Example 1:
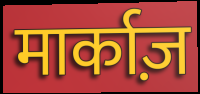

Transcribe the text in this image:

मार्काज़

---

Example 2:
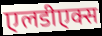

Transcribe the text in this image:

एलडीएक्स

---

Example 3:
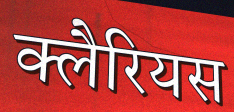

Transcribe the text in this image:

क्लैरियस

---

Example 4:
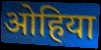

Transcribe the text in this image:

ओहिया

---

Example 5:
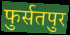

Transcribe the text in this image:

फुर्सतपुर